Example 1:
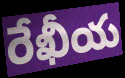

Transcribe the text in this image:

రేఖీయ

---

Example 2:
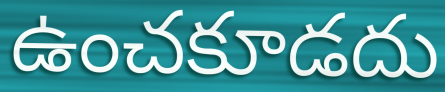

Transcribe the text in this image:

ఉంచకూడదు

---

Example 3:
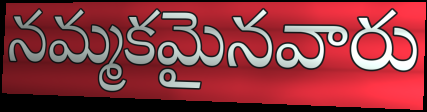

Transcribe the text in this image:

నమ్మకమైనవారు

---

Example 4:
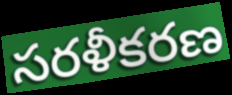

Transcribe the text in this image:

సరళీకరణ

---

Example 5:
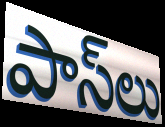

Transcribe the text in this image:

పాస్‌లు